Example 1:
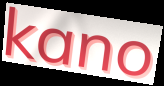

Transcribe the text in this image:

kano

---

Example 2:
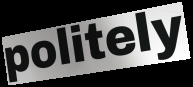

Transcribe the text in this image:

politely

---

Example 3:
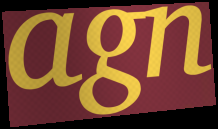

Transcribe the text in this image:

agn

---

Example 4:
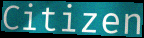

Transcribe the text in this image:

Citizen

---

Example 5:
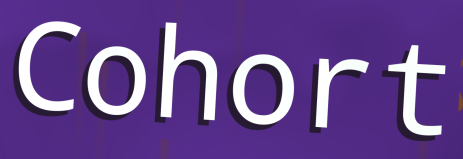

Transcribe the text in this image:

Cohort